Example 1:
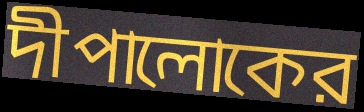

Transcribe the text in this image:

দীপালোকের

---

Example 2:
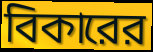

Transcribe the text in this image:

বিকারের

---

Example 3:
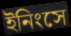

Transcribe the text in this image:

ইনিংসে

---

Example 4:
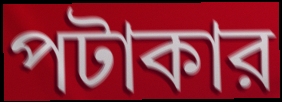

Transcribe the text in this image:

পটাকার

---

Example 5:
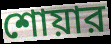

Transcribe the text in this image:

শোয়ার